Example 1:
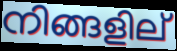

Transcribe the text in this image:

നിങ്ങളില്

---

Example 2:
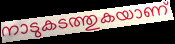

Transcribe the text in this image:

നാടുകടത്തുകയാണ്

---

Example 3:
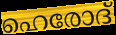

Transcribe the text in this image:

ഹെരോദ്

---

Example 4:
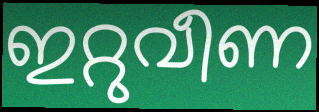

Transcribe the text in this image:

ഇറ്റുവീണ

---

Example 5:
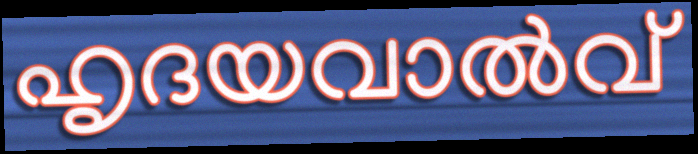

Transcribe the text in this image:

ഹൃദയവാൽവ്